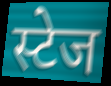
स्टेज